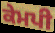
ਕੇਮਪੀ